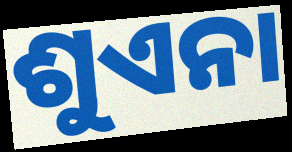
ଶୁଏନା